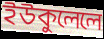
ইউকুলেলে